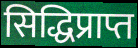
सिद्धिप्राप्त